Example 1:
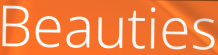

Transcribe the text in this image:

Beauties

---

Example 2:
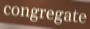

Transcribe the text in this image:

congregate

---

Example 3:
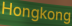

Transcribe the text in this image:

Hongkong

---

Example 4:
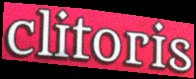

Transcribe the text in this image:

clitoris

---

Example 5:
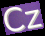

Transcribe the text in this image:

Cz